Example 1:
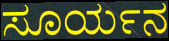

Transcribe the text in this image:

ಸೂರ್ಯನ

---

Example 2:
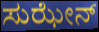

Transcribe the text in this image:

ಸುಝೇನ್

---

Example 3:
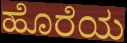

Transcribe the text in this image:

ಹೊರೆಯ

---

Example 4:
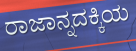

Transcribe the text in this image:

ರಾಜಾನ್ನದಕ್ಕಿಯ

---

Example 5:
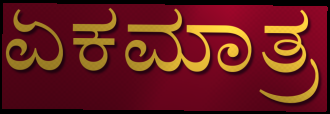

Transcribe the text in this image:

ಏಕಮಾತ್ರ